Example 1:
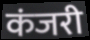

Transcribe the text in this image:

कंजरी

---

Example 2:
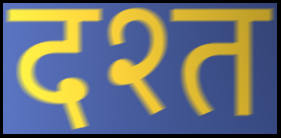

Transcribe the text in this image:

दश्त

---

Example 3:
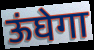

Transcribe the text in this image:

ऊंघेगा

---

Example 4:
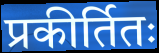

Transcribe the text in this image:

प्रकीर्तितः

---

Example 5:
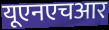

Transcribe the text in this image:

यूएनएचआर